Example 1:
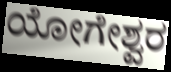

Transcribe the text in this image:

ಯೋಗೇಶ್ವರ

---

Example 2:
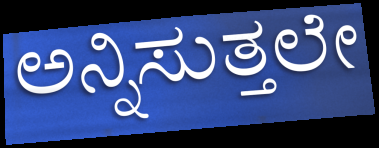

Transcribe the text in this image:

ಅನ್ನಿಸುತ್ತಲೇ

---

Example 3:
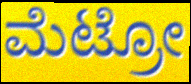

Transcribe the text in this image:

ಮೆಟ್ರೋ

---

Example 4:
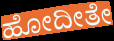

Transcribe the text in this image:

ಹೋದೀತೇ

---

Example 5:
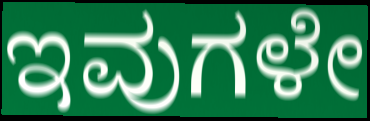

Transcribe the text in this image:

ಇವುಗಳೇ